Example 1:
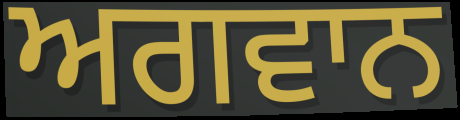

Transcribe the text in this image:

ਅਗਵਾਨ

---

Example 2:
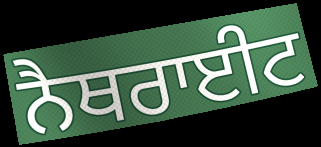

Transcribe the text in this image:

ਨੈਥਰਾਈਟ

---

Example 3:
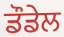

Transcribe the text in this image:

ਡੌਡੇਲ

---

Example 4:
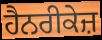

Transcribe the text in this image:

ਹੈਨਰੀਕੇਜ਼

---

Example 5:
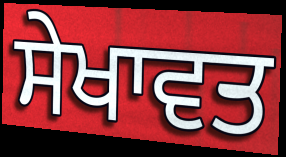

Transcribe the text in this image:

ਸੇਖਾਵਤ